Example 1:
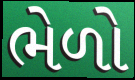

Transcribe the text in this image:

ભેળો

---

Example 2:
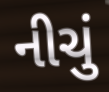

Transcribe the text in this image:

નીચું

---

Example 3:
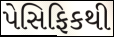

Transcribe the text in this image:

પેસિફિકથી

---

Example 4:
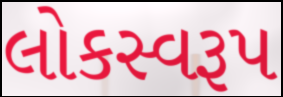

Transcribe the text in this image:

લોકસ્વરૂપ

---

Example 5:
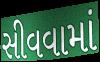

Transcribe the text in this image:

સીવવામાં